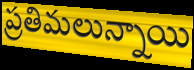
ప్రతిమలున్నాయి